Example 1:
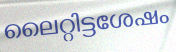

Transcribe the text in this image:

ലൈറ്റിട്ടശേഷം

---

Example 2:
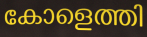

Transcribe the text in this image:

കോളെത്തി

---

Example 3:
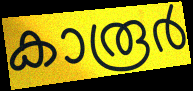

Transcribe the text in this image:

കാരൂർ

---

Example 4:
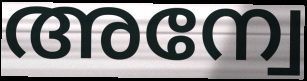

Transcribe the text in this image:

അന്വേ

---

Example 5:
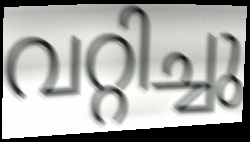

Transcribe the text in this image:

വറ്റിച്ചു